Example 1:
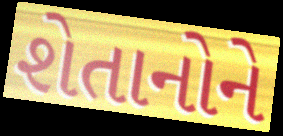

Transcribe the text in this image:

શેતાનોને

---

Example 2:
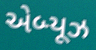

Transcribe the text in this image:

એબ્યૂઝ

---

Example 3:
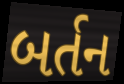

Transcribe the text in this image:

બર્તન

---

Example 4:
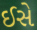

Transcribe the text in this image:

ઈસે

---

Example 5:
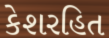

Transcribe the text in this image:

કેશરહિત